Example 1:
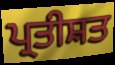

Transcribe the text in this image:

ਪ੍ਰਤੀਸ਼ਤ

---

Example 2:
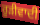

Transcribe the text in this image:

ਰੂੜੀਵਾਦੀ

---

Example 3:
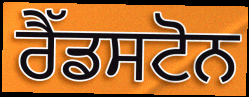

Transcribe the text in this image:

ਰੈੱਡਸਟੋਨ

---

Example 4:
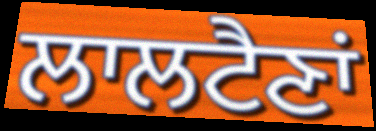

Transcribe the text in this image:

ਲਾਲਟੈਣਾਂ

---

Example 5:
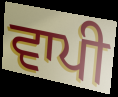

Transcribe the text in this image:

ਵਾਪੀ